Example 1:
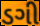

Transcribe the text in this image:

ડગી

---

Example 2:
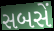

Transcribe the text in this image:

સબસેં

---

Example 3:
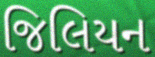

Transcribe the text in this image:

જિલિયન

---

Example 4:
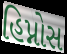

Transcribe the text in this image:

હિપ્નોસ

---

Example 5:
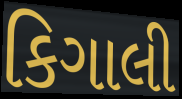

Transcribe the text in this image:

કિગાલી